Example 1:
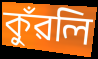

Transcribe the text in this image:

কুঁৱলি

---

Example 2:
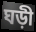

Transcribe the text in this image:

ঘড়ী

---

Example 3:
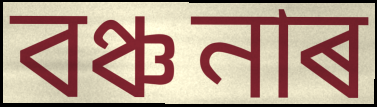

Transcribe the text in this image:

বঞ্চনাৰ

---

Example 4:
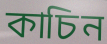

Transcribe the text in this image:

কাচিন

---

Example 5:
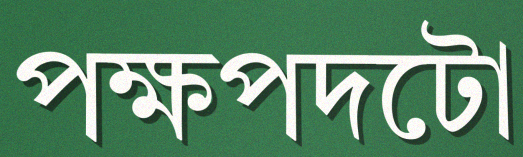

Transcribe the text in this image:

পক্ষপদটো